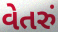
વેતરું